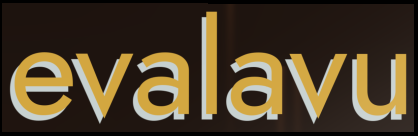
evalavu